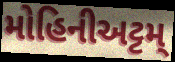
મોહિનીઅટ્ટમ્